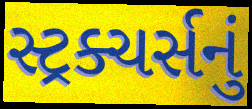
સ્ટ્રક્ચર્સનું